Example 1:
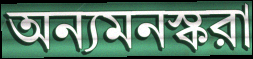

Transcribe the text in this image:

অন্যমনস্করা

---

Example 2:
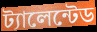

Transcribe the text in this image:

ট্যালেন্টেড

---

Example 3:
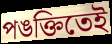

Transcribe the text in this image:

পঙক্তিতেই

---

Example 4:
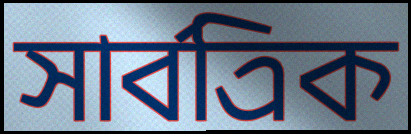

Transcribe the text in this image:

সার্বত্রিক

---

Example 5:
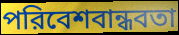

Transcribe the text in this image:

পরিবেশবান্ধবতা